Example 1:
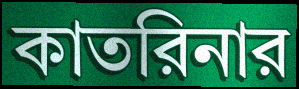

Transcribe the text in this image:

কাতরিনার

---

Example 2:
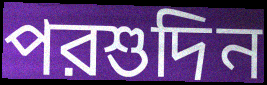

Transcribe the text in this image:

পরশুদিন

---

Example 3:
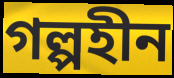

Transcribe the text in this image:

গল্পহীন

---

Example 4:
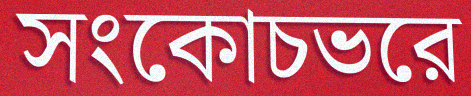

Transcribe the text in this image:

সংকোচভরে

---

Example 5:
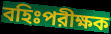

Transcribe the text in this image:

বহিঃপরীক্ষক